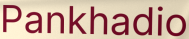
Pankhadio